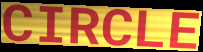
CIRCLE